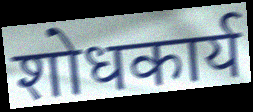
शोधकार्य